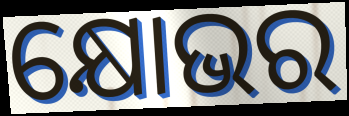
କ୍ଷୋଭର